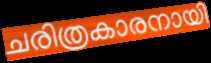
ചരിത്രകാരനായി